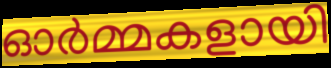
ഓർമ്മകളായി